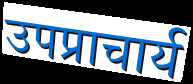
उपप्राचार्य